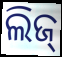
ଲିଜ୍